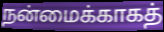
நன்மைக்காகத்